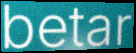
betar